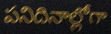
పనిదినాల్లోగా